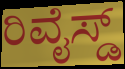
ರಿವೈಸ್ಡ್